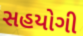
સહયોગી